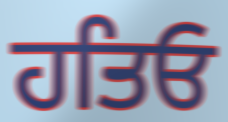
ਹਤਿਓ